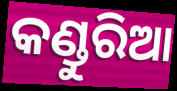
କଣ୍ଡୁରିଆ